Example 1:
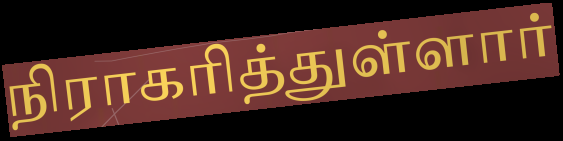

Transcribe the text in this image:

நிராகரித்துள்ளார்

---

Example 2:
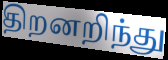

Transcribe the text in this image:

திறனறிந்து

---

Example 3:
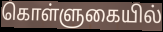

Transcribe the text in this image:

கொள்ளுகையில்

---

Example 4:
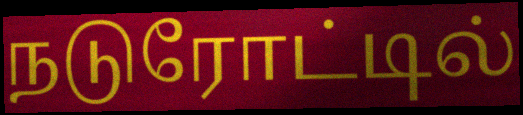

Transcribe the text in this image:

நடுரோட்டில்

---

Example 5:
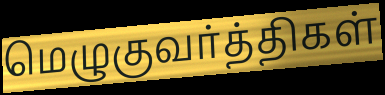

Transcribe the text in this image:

மெழுகுவர்த்திகள்